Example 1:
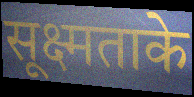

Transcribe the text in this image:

सूक्ष्मताके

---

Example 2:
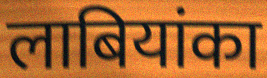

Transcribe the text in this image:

लाबियांका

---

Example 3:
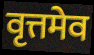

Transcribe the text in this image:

वृत्तमेव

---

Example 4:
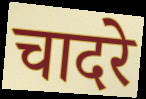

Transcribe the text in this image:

चादरे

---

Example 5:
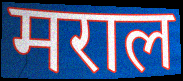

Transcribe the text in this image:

मराल